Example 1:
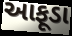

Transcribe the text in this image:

આફૂડા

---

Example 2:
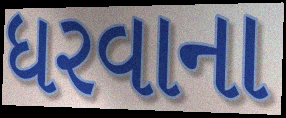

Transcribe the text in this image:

ધરવાના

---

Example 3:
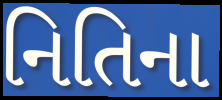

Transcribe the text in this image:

નિતિના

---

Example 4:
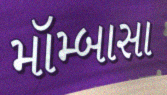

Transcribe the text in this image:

મૉમ્બાસા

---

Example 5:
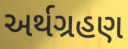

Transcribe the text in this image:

અર્થગ્રહણ